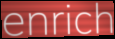
enrich